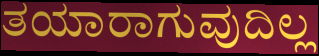
ತಯಾರಾಗುವುದಿಲ್ಲ